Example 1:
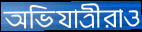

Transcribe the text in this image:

অভিযাত্রীরাও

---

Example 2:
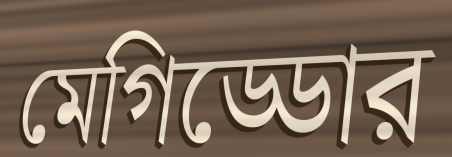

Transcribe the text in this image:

মেগিড্ডোর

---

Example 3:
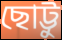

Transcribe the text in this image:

ছোট্টু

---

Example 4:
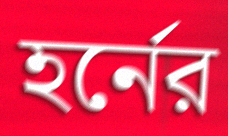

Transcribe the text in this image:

হর্নের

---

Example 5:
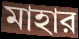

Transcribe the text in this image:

মাহার